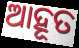
ଆହୂତ